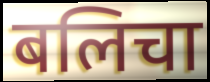
बलिचा